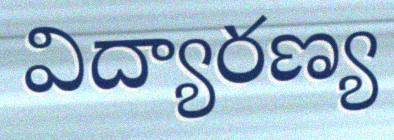
విద్యారణ్య